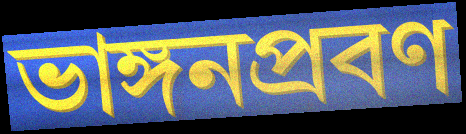
ভাঙ্গনপ্রবণ